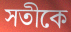
সতীকে